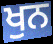
ਖੁਨ